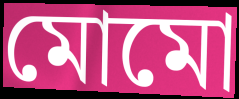
মোমো